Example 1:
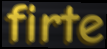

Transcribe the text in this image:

firte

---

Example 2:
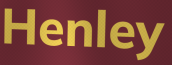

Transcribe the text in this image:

Henley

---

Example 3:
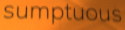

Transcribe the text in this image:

sumptuous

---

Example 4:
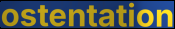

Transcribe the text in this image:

ostentation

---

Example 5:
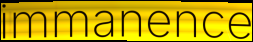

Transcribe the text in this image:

immanence